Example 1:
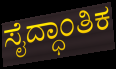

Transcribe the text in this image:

ಸೈದ್ಧಾಂತಿಕ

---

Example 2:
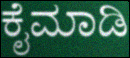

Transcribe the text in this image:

ಕೈಮಾಡಿ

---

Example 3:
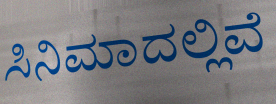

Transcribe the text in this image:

ಸಿನಿಮಾದಲ್ಲಿವೆ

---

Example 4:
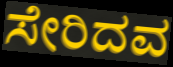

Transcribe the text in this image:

ಸೇರಿದವ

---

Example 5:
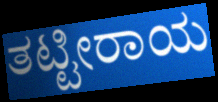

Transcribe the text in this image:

ತಟ್ಟೀರಾಯ